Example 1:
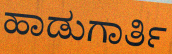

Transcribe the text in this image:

ಹಾಡುಗಾರ್ತಿ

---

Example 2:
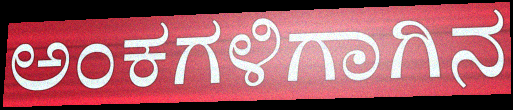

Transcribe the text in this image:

ಅಂಕಗಳಿಗಾಗಿನ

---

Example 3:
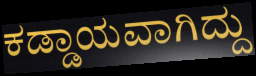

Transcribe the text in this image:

ಕಡ್ಡಾಯವಾಗಿದ್ದು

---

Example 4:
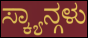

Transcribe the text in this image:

ಸ್ಕ್ಯಾನ್ಗಳು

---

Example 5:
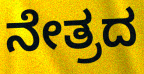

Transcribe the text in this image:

ನೇತ್ರದ